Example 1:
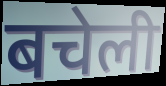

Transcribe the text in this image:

बचेली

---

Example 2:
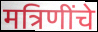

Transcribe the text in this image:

मत्रिणींचे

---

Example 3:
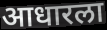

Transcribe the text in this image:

आधारला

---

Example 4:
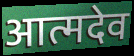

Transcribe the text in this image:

आत्मदेव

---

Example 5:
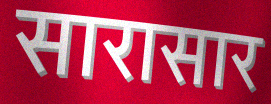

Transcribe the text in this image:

सारासार